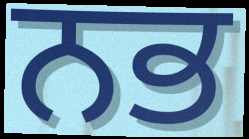
ਨਭ